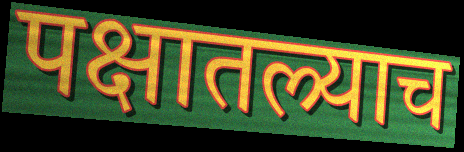
पक्षातल्याच